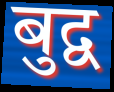
बुद्व